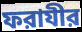
ফরাযীর